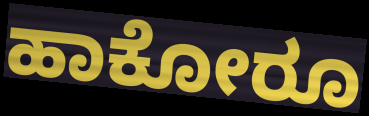
ಹಾಕೋರೂ